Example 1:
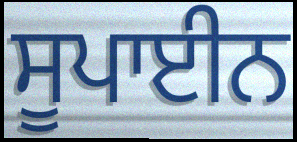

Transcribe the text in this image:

ਸੂਪਾਈਨ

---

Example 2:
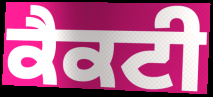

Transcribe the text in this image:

ਕੈਕਟੀ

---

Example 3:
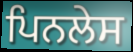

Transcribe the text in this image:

ਪਿਨਲੇਸ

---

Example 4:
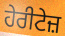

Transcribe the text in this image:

ਹੇਰੀਟੇਜ਼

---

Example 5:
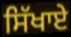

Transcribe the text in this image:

ਸਿੱਖਾਏ